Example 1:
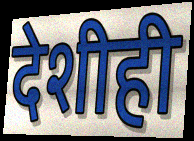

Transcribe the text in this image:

देशीही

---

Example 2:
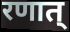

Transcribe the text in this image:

रणात्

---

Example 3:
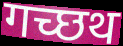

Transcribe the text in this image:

गच्छथ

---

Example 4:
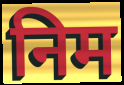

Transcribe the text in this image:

निम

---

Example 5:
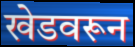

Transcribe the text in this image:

खेडवरून